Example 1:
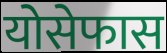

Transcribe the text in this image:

योसेफास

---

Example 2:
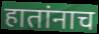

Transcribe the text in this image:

हातांनाच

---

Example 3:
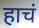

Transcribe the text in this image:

हाचं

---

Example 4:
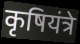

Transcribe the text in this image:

कृषियंत्रे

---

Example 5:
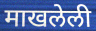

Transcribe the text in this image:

माखलेली